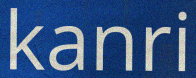
kanri